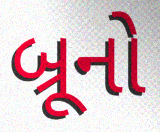
બ્રૂનો